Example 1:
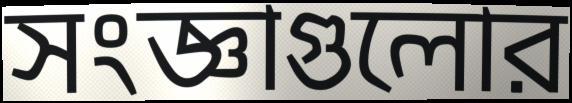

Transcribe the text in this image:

সংজ্ঞাগুলোর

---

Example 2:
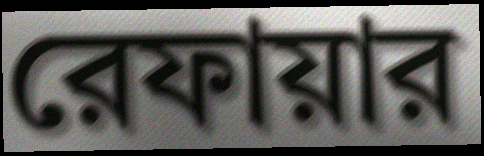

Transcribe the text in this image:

রেফায়ার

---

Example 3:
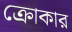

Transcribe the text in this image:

ক্রোকার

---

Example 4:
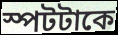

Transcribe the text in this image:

স্পটটাকে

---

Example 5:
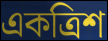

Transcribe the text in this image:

একত্রিশ